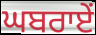
ਘਬਰਾਏਂ